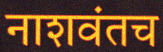
नाशवंतच